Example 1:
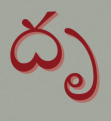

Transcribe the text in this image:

దృ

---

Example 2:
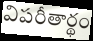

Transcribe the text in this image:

విపరీతార్థం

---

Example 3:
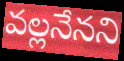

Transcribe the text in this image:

వల్లనేనని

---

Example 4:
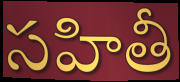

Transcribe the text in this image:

సహితీ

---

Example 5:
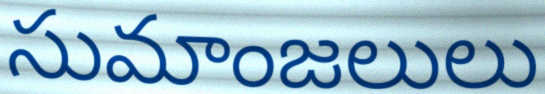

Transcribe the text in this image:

సుమాంజలులు